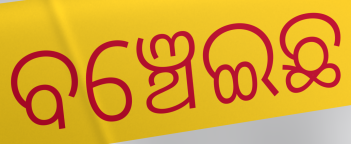
ବଞ୍ଚେଇଛ